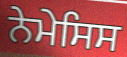
ਨੇਮੇਸਿਸ